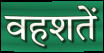
वहशतें